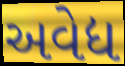
અવેદ્ય